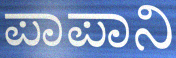
ಪಾಪಾನಿ